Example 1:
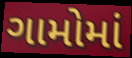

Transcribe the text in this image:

ગામોમાં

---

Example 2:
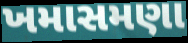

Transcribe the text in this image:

ખમાસમણા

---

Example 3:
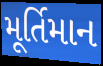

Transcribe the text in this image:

મૂર્તિમાન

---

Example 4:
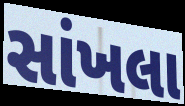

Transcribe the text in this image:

સાંખલા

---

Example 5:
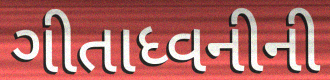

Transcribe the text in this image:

ગીતાધ્વનીની